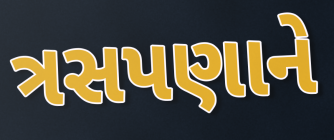
ત્રસપણાને